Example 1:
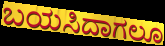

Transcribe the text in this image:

ಬಯಸಿದಾಗಲೂ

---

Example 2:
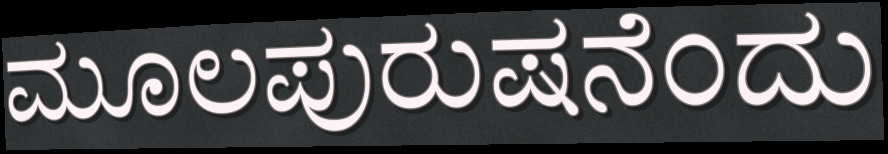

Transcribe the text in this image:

ಮೂಲಪುರುಷನೆಂದು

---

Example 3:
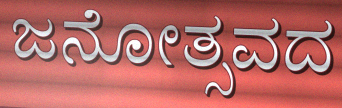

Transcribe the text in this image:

ಜನೋತ್ಸವದ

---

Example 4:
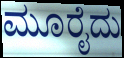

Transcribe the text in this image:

ಮೂರೈದು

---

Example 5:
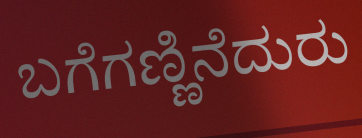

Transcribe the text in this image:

ಬಗೆಗಣ್ಣಿನೆದುರು